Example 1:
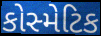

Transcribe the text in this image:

કોસ્મેટિક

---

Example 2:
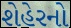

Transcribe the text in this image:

શેહેરનો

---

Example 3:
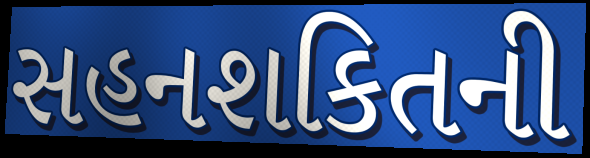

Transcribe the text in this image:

સહનશકિતની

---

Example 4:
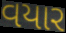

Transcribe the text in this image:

વયાર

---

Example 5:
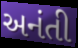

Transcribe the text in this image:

અનંતી